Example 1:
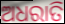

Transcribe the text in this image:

ଅଧରାତି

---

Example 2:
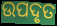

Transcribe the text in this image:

ଉପଦୃତ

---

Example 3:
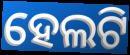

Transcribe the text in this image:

ହେଲଟି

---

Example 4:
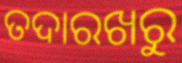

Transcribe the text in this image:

ତଦାରଖରୁ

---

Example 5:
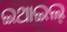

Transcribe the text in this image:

ଇଥାଇଲ୍